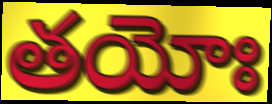
తయోః